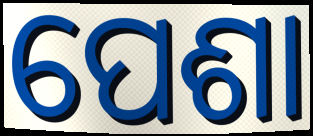
ପେଶା